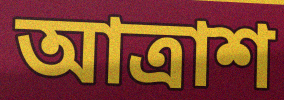
আত্রাশ